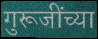
गुरूजींच्या